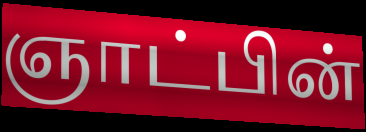
ஞாட்பின்